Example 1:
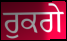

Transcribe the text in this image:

ਰੁਕਗੇ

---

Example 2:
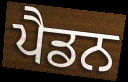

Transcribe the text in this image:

ਪੈਡਨ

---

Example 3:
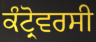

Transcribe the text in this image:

ਕੰਟ੍ਰੋਵਰਸੀ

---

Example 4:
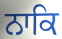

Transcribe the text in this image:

ਨਾਕਿ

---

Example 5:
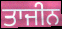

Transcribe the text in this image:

ਤਾਜੀਨ